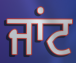
ਜਾਂਟ